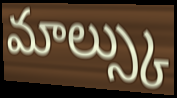
మాల్స్కు